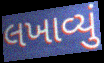
લખાવ્યું